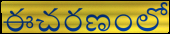
ఈచరణంలో